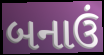
બનાઉં